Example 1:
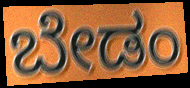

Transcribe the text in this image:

ಬೇಡಂ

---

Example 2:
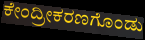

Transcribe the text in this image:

ಕೇಂದ್ರೀಕರಣಗೊಂಡು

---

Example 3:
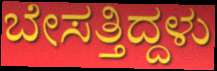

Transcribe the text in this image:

ಬೇಸತ್ತಿದ್ದಳು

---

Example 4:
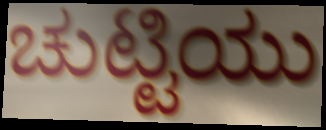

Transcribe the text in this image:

ಚುಟ್ಟಿಯು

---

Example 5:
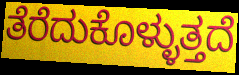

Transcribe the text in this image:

ತೆರೆದುಕೊಳ್ಳುತ್ತದೆ